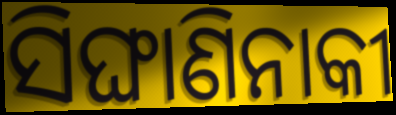
ସିଙ୍ଘାଣିନାକୀ